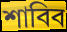
শাবিব